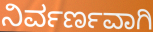
ನಿರ್ವರ್ಣವಾಗಿ